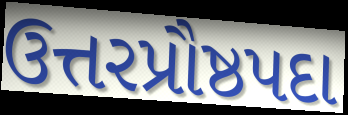
ઉત્તરપ્રૌષ્ઠપદા